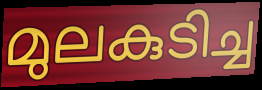
മുലകുടിച്ച